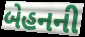
બેહનની